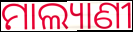
ମାଲ୍ୟାଣୀ